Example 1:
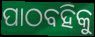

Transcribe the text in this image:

ପାଠବହିକୁ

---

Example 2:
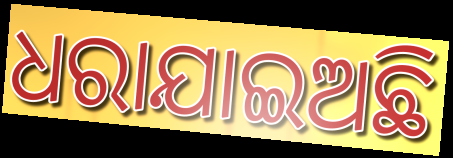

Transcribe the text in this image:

ଧରାଯାଇଅଛି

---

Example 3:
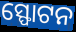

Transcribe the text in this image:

ସ୍ଫୋଟନ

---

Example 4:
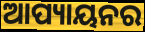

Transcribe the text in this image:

ଆପ୍ୟାୟନର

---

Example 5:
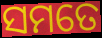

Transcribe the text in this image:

ସମତେ